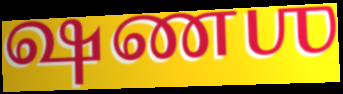
ஷணஶ